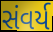
સંવર્ય